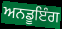
ਅਨਡੂਇੰਗ